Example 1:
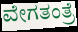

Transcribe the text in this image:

ವೇಗತಂತ್ರೆ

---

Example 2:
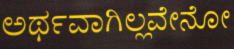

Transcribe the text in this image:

ಅರ್ಥವಾಗಿಲ್ಲವೇನೋ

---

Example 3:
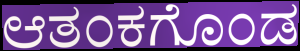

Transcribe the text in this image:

ಆತಂಕಗೊಂಡ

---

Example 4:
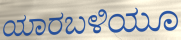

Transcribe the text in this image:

ಯಾರಬಳಿಯೂ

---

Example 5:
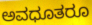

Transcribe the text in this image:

ಅವಧೂತರೂ